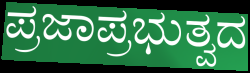
ಪ್ರಜಾಪ್ರಭುತ್ವದ